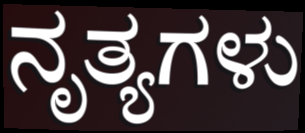
ನೃತ್ಯಗಳು